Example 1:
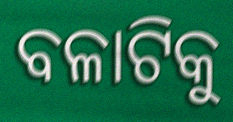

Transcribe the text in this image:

ବଳାଟିକୁ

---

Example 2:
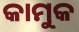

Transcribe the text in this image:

କାମୁକ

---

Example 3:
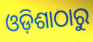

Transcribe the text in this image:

ଓଡ଼ିଶାଠାରୁ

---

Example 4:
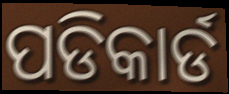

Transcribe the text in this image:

ପଡିକାର୍ଡ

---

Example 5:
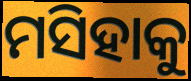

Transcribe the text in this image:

ମସିହାକୁ